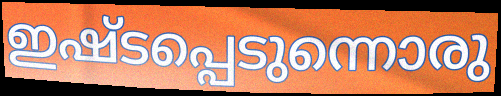
ഇഷ്ടപ്പെടുന്നൊരു